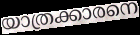
യാത്രക്കാരനെ